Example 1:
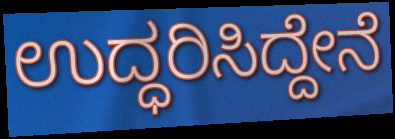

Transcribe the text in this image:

ಉದ್ಧರಿಸಿದ್ದೇನೆ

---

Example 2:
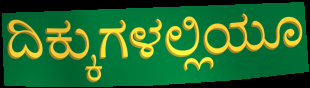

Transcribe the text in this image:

ದಿಕ್ಕುಗಳಲ್ಲಿಯೂ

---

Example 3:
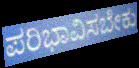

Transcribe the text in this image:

ಪರಿಭಾವಿಸಬೇಕು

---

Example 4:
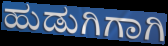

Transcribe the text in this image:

ಹುಡುಗಿಗಾಗಿ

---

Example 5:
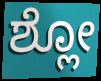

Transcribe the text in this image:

ಶ್ಲೋ